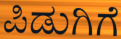
ಪಿಡುಗಿಗೆ